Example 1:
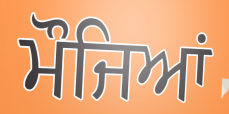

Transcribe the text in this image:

ਮੌਜਿਆਂ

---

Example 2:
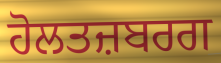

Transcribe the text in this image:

ਹੋਲਤਜ਼ਬਰਗ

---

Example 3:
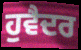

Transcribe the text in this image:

ਹੁਵੈਦਰ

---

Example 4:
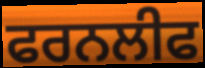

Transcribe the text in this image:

ਫਰਨਲੀਫ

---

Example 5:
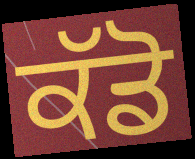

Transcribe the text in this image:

ਕੱਡੋ